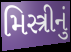
મિસ્ત્રીનું